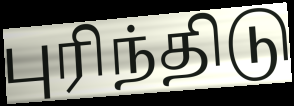
புரிந்திடு